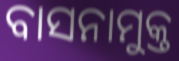
ବାସନାମୁକ୍ତ